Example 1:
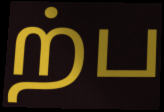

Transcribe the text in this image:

ற்ப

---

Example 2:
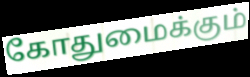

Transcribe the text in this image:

கோதுமைக்கும்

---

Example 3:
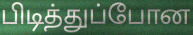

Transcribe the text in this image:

பிடித்துப்போன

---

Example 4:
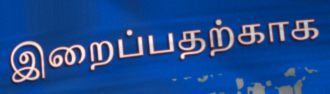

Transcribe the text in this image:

இறைப்பதற்காக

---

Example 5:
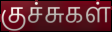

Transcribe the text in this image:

குச்சுகள்